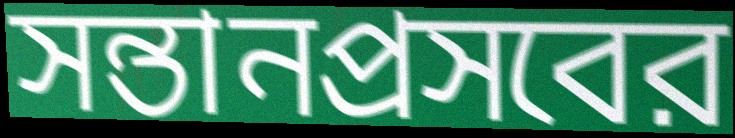
সন্তানপ্রসবের